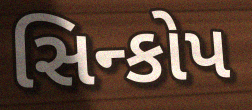
સિન્કોપ